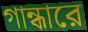
গান্ধারে